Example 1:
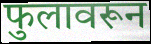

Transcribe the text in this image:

फुलावरून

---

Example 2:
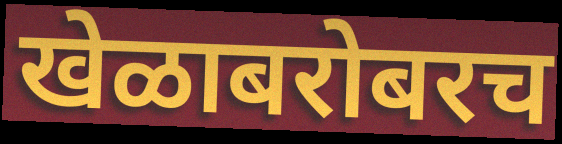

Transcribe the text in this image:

खेळाबरोबरच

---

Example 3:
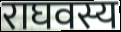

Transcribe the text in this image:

राघवस्य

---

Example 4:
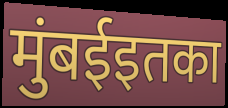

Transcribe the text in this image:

मुंबईइतका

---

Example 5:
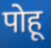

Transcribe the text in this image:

पोहू